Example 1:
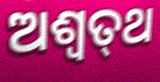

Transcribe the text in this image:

ଅଶ୍ଵତ୍‍ଥ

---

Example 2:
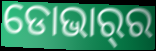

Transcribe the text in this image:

ଡୋଭାର୍‌ର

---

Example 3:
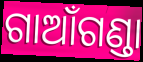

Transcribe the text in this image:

ଗାଆଁଗଣ୍ଡା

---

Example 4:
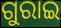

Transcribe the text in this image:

ଗୁରାଇ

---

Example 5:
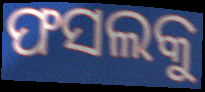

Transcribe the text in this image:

ଫସଲକୁ